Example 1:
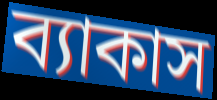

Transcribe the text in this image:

ব্যাকাস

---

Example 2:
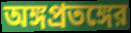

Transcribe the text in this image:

অঙ্গপ্রতঙ্গের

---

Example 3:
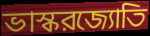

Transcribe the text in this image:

ভাস্করজ্যোতি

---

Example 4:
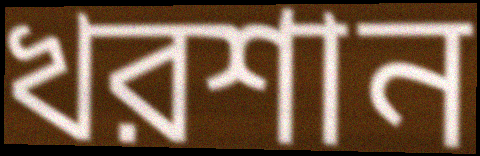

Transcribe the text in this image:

খরশান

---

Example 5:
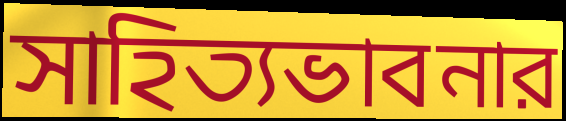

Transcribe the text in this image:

সাহিত্যভাবনার